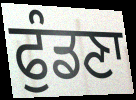
ਫੁੰਡਣਾ